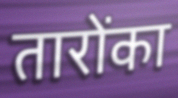
तारोंका